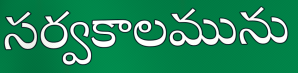
సర్వకాలమును